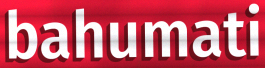
bahumati